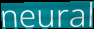
neural